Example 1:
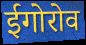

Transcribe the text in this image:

ईगोरोव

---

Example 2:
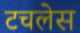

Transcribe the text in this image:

टचलेस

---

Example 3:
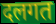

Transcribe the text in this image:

दलगत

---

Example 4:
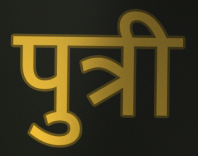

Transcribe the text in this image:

पुत्री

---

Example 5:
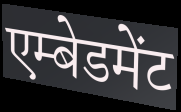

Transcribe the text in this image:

एम्बेडमेंट